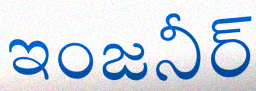
ఇంజనీర్